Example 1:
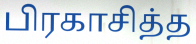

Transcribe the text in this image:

பிரகாசித்த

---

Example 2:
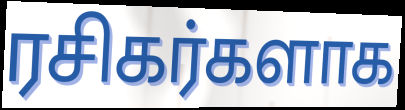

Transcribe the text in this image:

ரசிகர்களாக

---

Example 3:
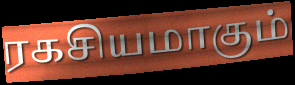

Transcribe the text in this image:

ரகசியமாகும்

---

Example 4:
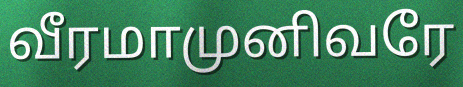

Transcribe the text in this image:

வீரமாமுனிவரே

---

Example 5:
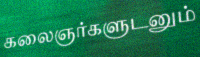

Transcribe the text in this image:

கலைஞர்களுடனும்